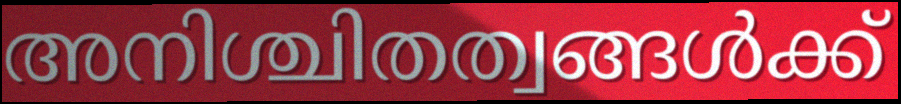
അനിശ്ചിതത്വങ്ങൾക്ക്